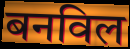
बनविल